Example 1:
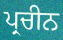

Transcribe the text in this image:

ਪ੍ਰਚੀਨ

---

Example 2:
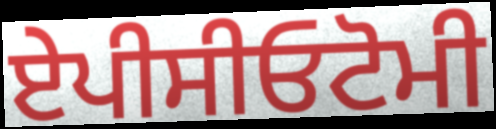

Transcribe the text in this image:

ਏਪੀਸੀਓਟੋਮੀ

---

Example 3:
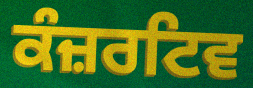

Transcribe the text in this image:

ਕੰਜ਼ਰਟਿਵ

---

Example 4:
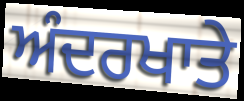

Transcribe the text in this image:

ਅੰਦਰਖਾਤੇ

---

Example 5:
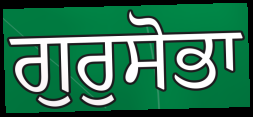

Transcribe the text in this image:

ਗੁਰੁਸੋਭਾ